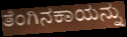
ತೆಂಗಿನಕಾಯನ್ನು